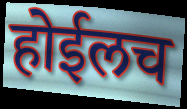
होईलच